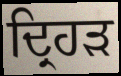
ਦ੍ਰਿਹੜ